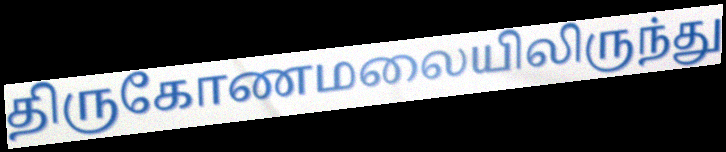
திருகோணமலையிலிருந்து